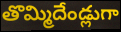
తొమ్మిదేండ్లుగా